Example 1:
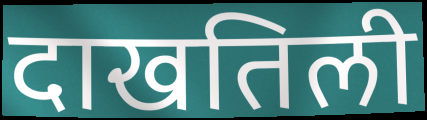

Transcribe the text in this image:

दाखतिली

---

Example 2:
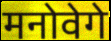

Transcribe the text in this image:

मनोवेगे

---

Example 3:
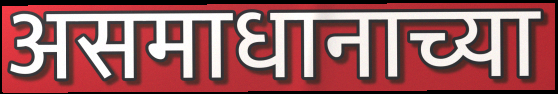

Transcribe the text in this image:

असमाधानाच्या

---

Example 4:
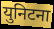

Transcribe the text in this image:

युनिटना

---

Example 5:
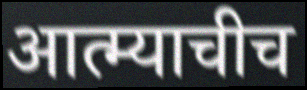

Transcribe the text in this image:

आत्म्याचीच